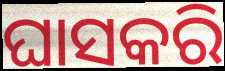
ଘାସକରି